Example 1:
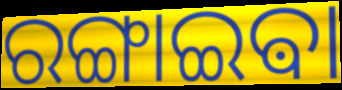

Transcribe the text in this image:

ରଙ୍ଗାଇଵା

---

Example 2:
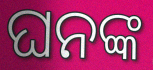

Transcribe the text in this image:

ଘନଙ୍କ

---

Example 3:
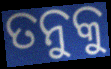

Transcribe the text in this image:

ତନୁକୁ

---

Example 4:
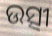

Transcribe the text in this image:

ଉତ୍ସୀ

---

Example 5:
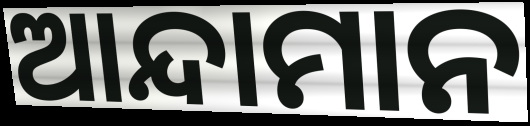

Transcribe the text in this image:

ଆନ୍ଦାମାନ